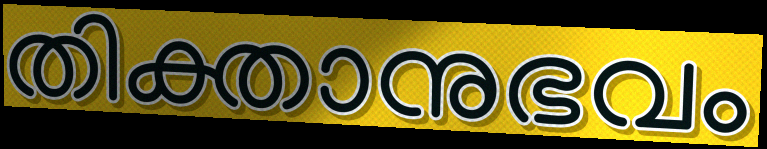
തിക്താനുഭവം